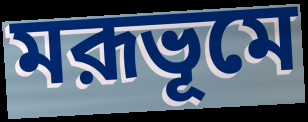
মরূভূমে